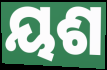
ୟଶ